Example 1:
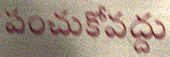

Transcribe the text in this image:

పంచుకోవద్దు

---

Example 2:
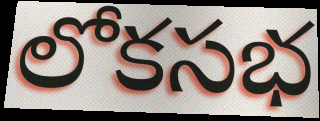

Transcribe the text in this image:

లోకసభ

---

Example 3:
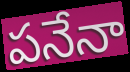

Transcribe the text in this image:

పనేనా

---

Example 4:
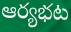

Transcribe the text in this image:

ఆర్యభట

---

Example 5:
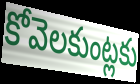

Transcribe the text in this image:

కోవెలకుంట్లకు